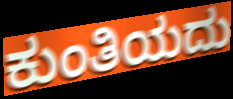
ಕುಂತಿಯದು